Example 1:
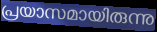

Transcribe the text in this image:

പ്രയാസമായിരുന്നു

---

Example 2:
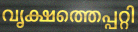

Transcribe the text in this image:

വൃക്ഷത്തെപ്പറ്റി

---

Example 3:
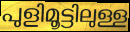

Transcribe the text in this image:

പുളിമൂട്ടിലുള്ള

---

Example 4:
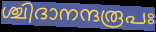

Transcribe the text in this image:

ശ്ചിദാനന്ദരൂപഃ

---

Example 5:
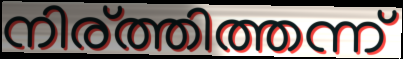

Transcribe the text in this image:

നിര്ത്തിത്തന്ന്